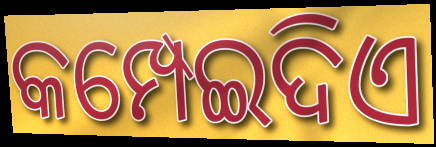
କମ୍ପେଇଦିଏ